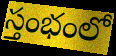
స్తంభంలో